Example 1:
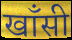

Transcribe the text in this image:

खाँसी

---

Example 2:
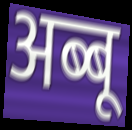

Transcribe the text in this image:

अब्बू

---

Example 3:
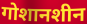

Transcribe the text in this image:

गोशानशीन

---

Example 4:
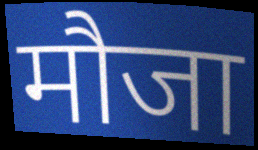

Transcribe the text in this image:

मौजा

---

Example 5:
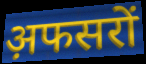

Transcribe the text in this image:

अ़फसरों